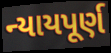
ન્યાયપૂર્ણ